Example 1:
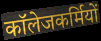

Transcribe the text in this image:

कॉलेजकर्मियों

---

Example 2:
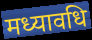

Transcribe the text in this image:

मध्यावधि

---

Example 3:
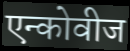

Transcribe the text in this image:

एन्कोवीज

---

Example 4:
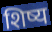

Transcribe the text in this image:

शिष्य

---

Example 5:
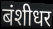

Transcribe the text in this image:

बंशीधर